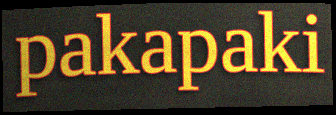
pakapaki